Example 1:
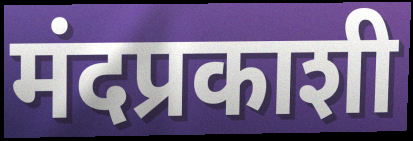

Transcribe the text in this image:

मंदप्रकाशी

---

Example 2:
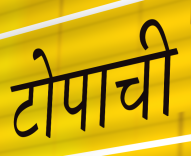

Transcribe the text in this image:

टोपाची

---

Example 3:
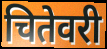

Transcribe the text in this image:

चितेवरी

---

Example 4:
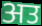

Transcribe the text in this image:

अउ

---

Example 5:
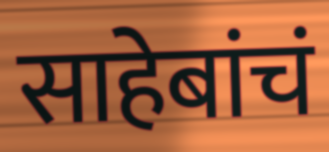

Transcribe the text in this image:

साहेबांचं